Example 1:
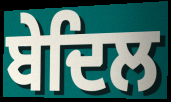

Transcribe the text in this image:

ਬੇਦਿਲ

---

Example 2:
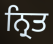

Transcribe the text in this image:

ਨ੍ਰਿਤ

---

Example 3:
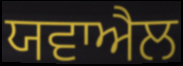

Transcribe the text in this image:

ਯਵਾਐਲ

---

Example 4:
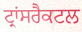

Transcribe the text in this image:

ਟ੍ਰਾਂਸਰੈਕਟਲ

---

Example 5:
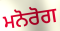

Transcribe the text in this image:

ਮਨੋਰੋਗ